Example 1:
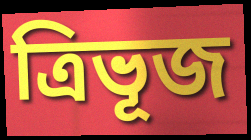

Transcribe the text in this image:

ত্ৰিভূজ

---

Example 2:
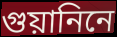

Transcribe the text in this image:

গুয়ানিনে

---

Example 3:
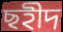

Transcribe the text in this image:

ছহীদ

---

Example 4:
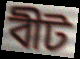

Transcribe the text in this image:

বীট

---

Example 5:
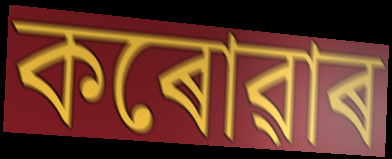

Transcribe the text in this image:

কৰোৱাৰ